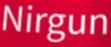
Nirgun